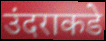
उंदराकडे